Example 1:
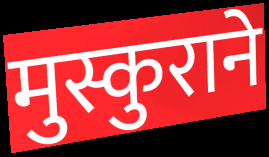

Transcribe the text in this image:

मुस्कुराने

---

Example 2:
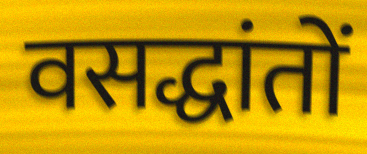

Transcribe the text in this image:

वसद्धांतों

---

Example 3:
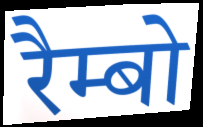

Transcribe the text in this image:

रैम्बो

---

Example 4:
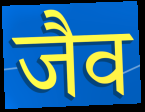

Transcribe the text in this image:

जैव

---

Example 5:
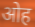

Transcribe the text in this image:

ओह